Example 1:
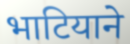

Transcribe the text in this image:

भाटियाने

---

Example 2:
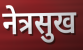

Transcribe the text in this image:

नेत्रसुख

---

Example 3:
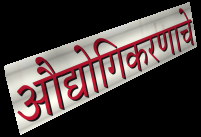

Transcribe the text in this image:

औद्योगिकरणाचे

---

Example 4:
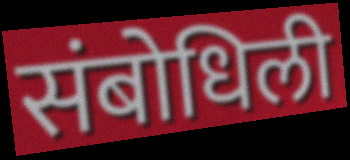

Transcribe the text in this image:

संबोधिली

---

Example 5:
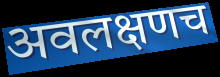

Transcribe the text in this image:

अवलक्षणच